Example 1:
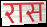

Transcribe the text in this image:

रास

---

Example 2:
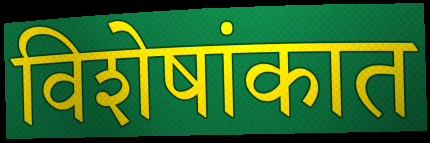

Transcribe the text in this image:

विशेषांकात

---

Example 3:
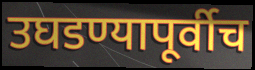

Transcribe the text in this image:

उघडण्यापूर्वीच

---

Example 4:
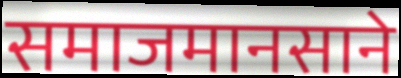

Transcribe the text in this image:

समाजमानसाने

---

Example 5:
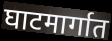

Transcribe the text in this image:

घाटमार्गात